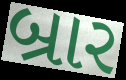
બ્રાર